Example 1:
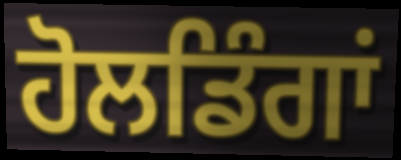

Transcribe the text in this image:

ਹੋਲਡਿੰਗਾਂ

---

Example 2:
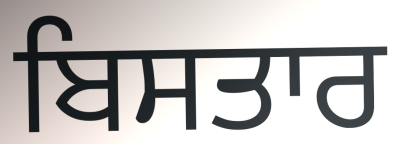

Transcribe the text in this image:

ਬਿਸਤਾਰ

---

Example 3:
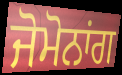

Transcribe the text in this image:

ਜੋਮੋਨਾਂਗ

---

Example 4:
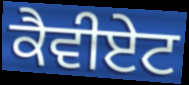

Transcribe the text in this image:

ਕੈਵੀਏਟ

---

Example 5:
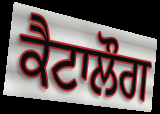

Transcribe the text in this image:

ਕੈਟਾਲੌਗ